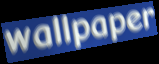
wallpaper